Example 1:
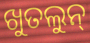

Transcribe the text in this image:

ଖୁତଲୁନ୍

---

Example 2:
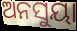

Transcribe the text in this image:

ଅନସୁୟା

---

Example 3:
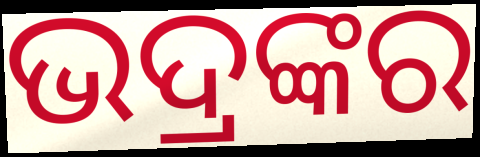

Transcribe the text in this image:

ଭଦ୍ରଙ୍କର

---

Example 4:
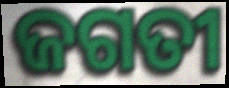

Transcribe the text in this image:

ଜଗତୀ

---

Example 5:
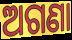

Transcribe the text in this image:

ଅଗଣା